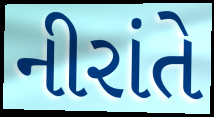
નીરાંતે